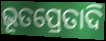
ଭୂତପ୍ରେତାଦି